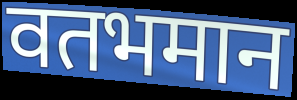
वतभमान